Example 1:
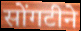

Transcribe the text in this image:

सोंगटीने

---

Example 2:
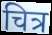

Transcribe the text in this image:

चित्र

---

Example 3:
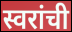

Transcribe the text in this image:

स्वरांची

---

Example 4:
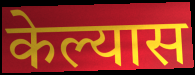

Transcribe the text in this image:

केल्यास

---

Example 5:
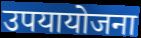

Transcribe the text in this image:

उपयायोजना